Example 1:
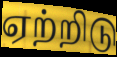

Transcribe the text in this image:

ஏற்றிடு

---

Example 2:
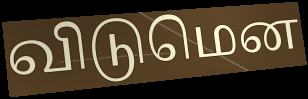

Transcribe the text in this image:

விடுமென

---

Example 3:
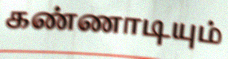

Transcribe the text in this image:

கண்ணாடியும்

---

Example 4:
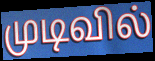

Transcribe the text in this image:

முடிவில்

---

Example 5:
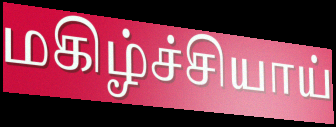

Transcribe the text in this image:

மகிழ்ச்சியாய்